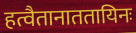
हत्वैतानाततायिनः